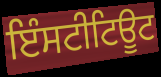
ਇੰਸਟੀਟਿਊਟ